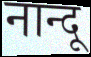
नान्दू